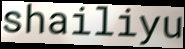
shailiyu